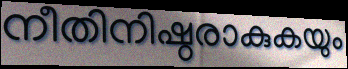
നീതിനിഷ്ഠരാകുകയും